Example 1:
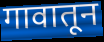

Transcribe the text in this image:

गावातून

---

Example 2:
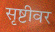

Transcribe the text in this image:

सृष्टीवर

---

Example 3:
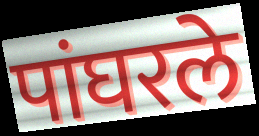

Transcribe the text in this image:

पांघरले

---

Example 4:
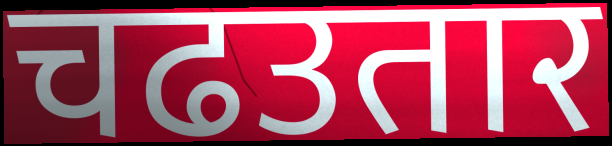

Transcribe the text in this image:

चढउतार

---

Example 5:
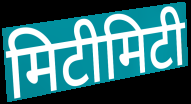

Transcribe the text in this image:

मिटीमिटी